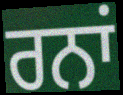
ਰਨਾਂ